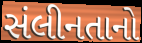
સંલીનતાનો